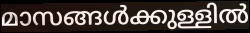
മാസങ്ങൾക്കുള്ളിൽ